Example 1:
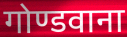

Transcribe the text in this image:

गोण्डवाना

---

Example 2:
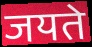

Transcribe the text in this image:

जयते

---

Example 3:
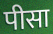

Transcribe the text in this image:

पीसा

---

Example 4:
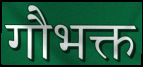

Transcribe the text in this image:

गौभक्त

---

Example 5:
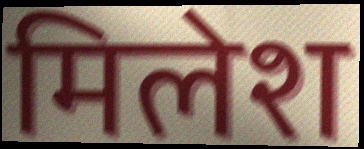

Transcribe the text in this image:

मिलेश